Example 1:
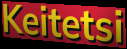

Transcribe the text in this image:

Keitetsi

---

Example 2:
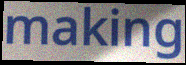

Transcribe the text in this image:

making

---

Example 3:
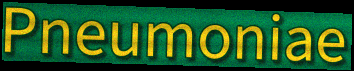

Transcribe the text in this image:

Pneumoniae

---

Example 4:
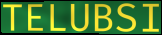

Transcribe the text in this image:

TELUBSI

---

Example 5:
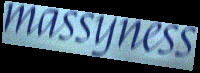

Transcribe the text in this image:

massyness